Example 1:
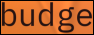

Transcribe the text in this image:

budge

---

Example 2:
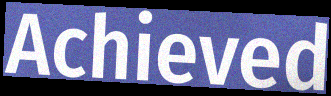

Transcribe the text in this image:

Achieved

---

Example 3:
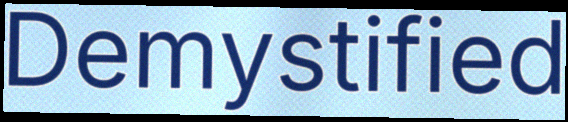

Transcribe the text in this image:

Demystified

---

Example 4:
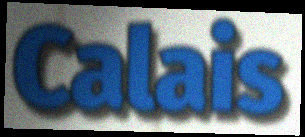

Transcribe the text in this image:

Calais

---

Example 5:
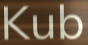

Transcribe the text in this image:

Kub